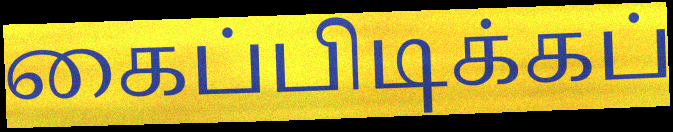
கைப்பிடிக்கப்